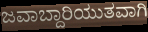
ಜವಾಬ್ದಾರಿಯುತವಾಗಿ